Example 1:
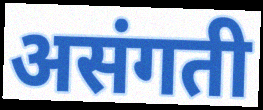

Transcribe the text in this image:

असंगती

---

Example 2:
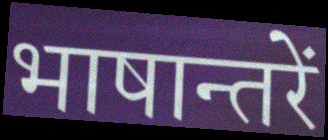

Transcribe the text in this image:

भाषान्तरें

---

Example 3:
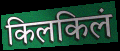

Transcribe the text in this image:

किलकिलं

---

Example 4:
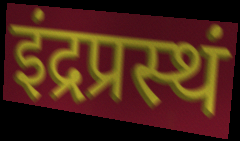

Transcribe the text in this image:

इंद्रप्रस्थं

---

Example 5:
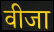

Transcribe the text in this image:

वीजा